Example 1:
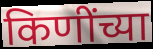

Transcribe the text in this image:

किणींच्या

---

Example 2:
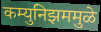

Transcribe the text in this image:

कम्युनिझममुळे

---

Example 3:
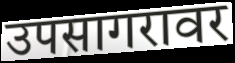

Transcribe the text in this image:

उपसागरावर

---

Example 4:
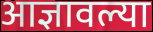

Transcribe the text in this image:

आज्ञावल्या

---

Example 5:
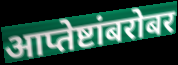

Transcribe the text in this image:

आप्तेष्टांबरोबर